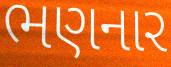
ભણનાર